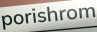
porishrom